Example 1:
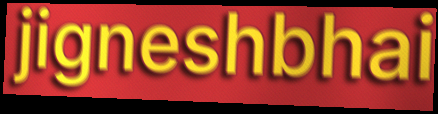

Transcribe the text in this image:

jigneshbhai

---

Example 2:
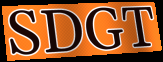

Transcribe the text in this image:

SDGT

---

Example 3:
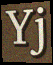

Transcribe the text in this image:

Yj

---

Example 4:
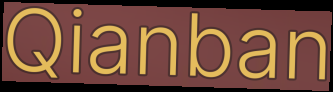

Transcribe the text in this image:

Qianban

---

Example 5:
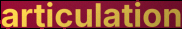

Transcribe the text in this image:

articulation